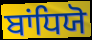
ਬਾਂਧਿਯੋ